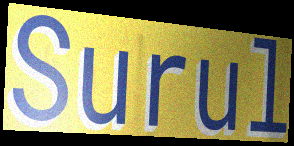
Surul